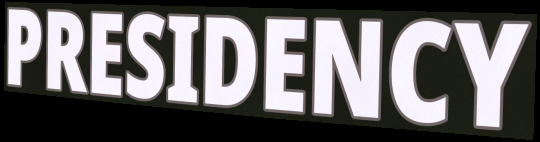
PRESIDENCY